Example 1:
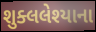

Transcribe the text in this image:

શુક્લલેશ્યાના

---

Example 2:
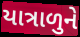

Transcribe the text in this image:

યાત્રાળુને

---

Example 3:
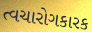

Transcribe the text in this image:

ત્વચારોગકારક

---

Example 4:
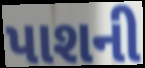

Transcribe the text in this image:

પાશની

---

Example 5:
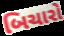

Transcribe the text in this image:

બિચારો